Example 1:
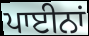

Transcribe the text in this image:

ਪਾਈਨਾਂ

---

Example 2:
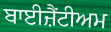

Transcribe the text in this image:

ਬਾਈਜ਼ੈਂਟੀਅਮ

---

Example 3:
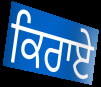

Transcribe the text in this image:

ਕਿਰਾਏ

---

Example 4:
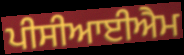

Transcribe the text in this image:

ਪੀਸੀਆਈਐਮ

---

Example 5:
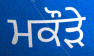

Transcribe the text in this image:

ਮਕੌੜੇ